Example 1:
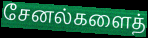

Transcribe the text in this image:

சேனல்களைத்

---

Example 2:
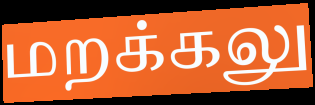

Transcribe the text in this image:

மறக்கலு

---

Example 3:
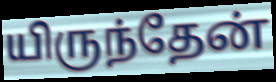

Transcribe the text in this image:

யிருந்தேன்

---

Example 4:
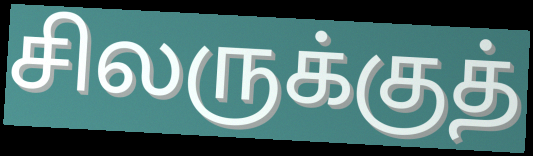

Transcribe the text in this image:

சிலருக்குத்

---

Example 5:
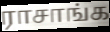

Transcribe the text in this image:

ராசாங்க